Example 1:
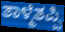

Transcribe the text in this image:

ತಾಳ್ಮೆತಪ್ಪಿ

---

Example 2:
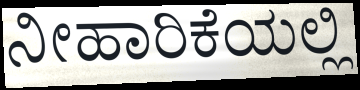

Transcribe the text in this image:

ನೀಹಾರಿಕೆಯಲ್ಲಿ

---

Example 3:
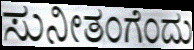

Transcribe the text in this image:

ಸುನೀತಂಗೆಂದು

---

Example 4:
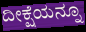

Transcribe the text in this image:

ದೀಕ್ಷೆಯನ್ನೂ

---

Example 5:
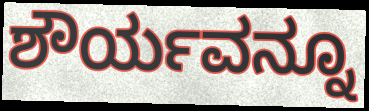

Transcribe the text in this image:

ಶೌರ್ಯವನ್ನೂ